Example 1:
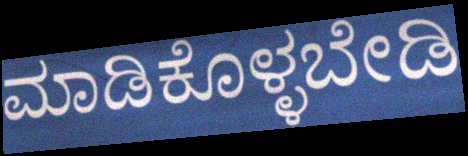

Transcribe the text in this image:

ಮಾಡಿಕೊಳ್ಳಬೇಡಿ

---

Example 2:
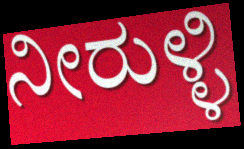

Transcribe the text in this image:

ನೀರುಳ್ಳಿ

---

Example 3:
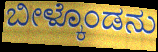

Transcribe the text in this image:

ಬೀಳ್ಕೊಂಡನು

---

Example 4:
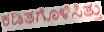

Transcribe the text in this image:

ಕಡಿತಗೊಳಿಸಿತ್ತು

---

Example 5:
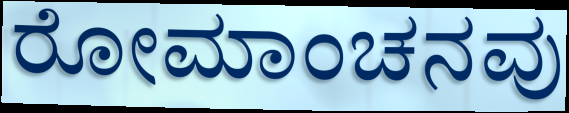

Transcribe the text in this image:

ರೋಮಾಂಚನವು